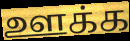
ஊக்க